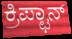
ಕ್ರಿಪ್ಟಾನ್